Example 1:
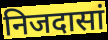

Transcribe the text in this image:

निजदासां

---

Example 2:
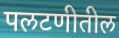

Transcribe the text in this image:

पलटणीतील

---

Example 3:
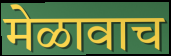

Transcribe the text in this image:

मेळावाच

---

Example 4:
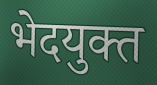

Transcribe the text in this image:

भेदयुक्त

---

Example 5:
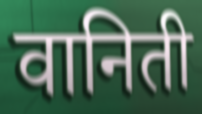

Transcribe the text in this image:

वानिती